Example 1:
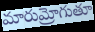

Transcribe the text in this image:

మారుమ్రోగుతూ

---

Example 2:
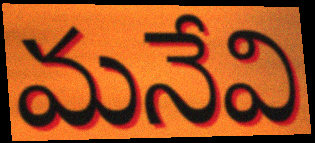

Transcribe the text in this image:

మనేవి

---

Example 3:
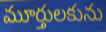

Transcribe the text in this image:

మూర్తులకును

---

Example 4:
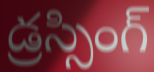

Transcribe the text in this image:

డ్రస్సింగ్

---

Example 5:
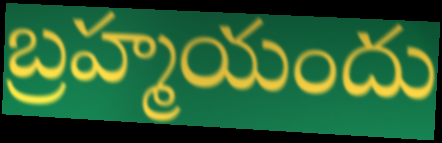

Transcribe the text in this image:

బ్రహ్మయందు